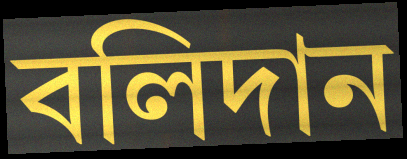
বলিদান